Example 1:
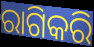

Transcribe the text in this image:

ରାଗିକରି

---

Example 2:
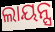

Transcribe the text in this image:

ଲାୟନ୍ସ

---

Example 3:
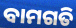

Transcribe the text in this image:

ବାମଗତି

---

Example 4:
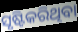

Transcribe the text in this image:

ସୃଷ୍ଟିକରିଥିବା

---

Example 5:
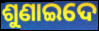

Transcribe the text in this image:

ଶୁଣାଇଦେ